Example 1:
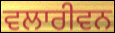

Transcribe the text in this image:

ਵਲਾਰੀਵਨ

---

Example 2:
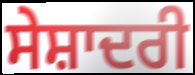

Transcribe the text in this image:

ਸੇਸ਼ਾਦਰੀ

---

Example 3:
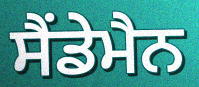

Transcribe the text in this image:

ਸੈਂਡੇਮੈਨ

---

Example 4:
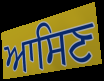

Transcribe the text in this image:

ਆਸਿਣ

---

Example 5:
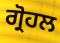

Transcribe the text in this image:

ਗ੍ਰੋਹਲ